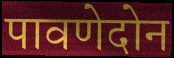
पावणेदोन